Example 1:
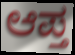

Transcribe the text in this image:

ಆಪ್ತ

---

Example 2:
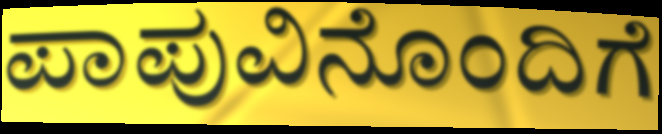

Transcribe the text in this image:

ಪಾಪುವಿನೊಂದಿಗೆ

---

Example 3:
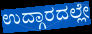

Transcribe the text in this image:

ಉದ್ಗಾರದಲ್ಲೇ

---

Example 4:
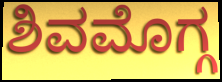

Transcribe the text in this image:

ಶಿವಮೊಗ್ಗ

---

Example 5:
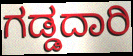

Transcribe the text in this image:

ಗಡ್ಡದಾರಿ